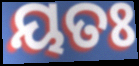
ୟତଃ